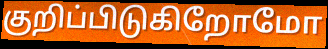
குறிப்பிடுகிறோமோ